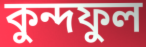
কুন্দফুল